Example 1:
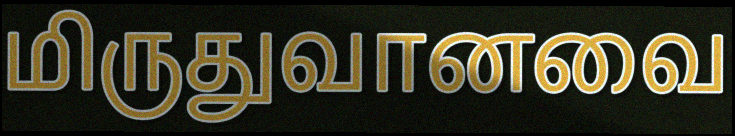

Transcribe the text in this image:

மிருதுவானவை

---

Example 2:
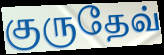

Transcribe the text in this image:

குருதேவ்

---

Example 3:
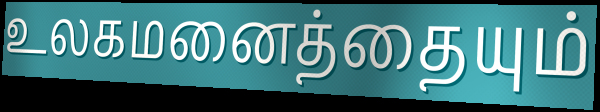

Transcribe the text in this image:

உலகமனைத்தையும்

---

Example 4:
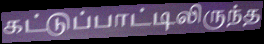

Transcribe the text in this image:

கட்டுப்பாட்டிலிருந்த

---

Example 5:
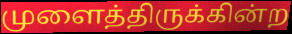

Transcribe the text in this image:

முளைத்திருக்கின்ற